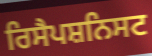
ਰਿਸੈਪਸ਼ਨਿਸਟ